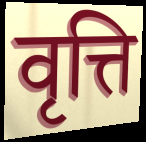
वृत्ति